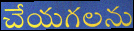
చేయగలను